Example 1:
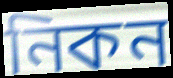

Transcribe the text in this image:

নিকন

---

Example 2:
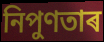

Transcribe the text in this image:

নিপুণতাৰ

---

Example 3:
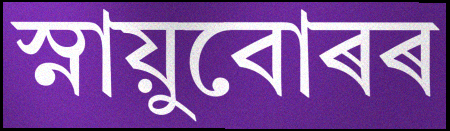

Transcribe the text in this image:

স্নায়ুবোৰৰ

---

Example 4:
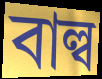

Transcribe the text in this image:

বাল্ব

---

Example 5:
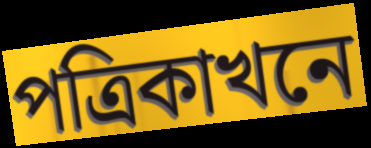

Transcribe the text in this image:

পত্ৰিকাখনে